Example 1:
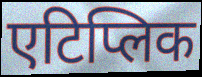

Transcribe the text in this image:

एटिप्लिक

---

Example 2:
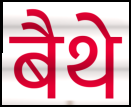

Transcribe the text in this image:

बैथे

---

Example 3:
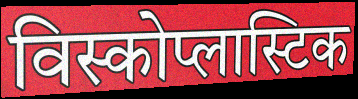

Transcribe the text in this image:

विस्कोप्लास्टिक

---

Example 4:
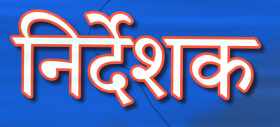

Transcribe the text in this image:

निर्देशक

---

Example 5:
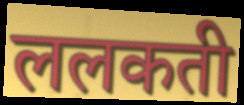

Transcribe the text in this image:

ललकती